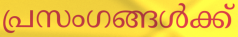
പ്രസംഗങ്ങൾക്ക്